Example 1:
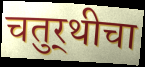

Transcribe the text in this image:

चतुर्थीचा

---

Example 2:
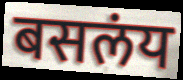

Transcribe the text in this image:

बसलंय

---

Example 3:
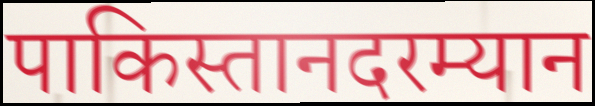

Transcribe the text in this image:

पाकिस्तानदरम्यान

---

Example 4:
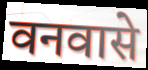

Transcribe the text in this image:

वनवासे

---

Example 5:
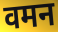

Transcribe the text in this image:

वमन